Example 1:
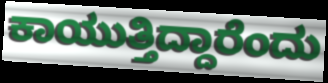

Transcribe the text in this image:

ಕಾಯುತ್ತಿದ್ದಾರೆಂದು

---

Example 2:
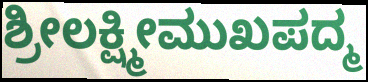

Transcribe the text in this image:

ಶ್ರೀಲಕ್ಷ್ಮೀಮುಖಪದ್ಮ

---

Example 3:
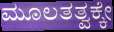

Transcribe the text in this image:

ಮೂಲತತ್ವಕ್ಕೇ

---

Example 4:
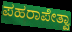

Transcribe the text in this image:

ಪಹರಾಪೇತ್ವಾ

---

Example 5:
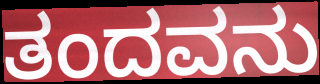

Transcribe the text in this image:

ತಂದವನು